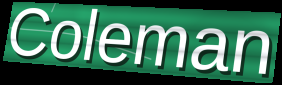
Coleman